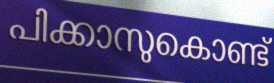
പിക്കാസുകൊണ്ട്